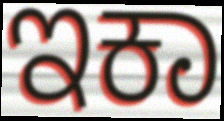
ಇಕಾ